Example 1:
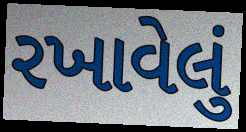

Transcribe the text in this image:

રખાવેલું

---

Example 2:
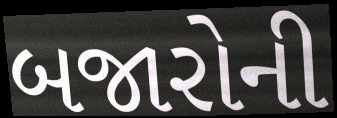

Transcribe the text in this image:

બજારોની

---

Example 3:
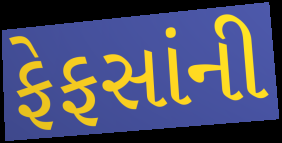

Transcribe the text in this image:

ફેફસાંની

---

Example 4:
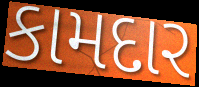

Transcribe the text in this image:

કામદાર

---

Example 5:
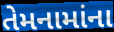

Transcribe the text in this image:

તેમનામાંના